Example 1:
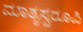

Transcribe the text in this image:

ಮಾತೃಸ್ವರೂಪಿ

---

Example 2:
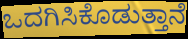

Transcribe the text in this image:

ಒದಗಿಸಿಕೊಡುತ್ತಾನೆ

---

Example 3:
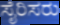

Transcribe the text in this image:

ಸೈರಿಸರು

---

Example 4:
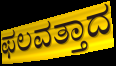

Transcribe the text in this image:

ಫಲವತ್ತಾದ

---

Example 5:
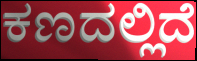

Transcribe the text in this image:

ಕಣದಲ್ಲಿದೆ